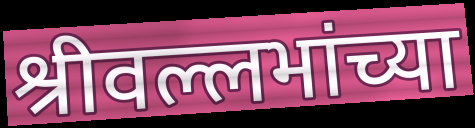
श्रीवल्लभांच्या